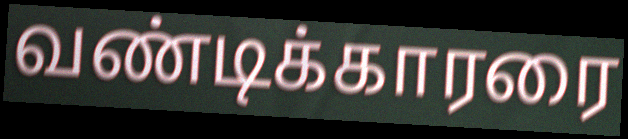
வண்டிக்காரரை